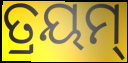
ତ୍ରୟମ୍